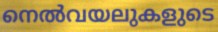
നെൽവയലുകളുടെ